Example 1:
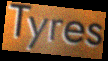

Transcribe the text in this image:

Tyres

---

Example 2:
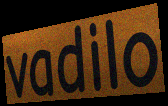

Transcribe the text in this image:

vadilo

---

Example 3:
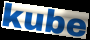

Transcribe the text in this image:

kube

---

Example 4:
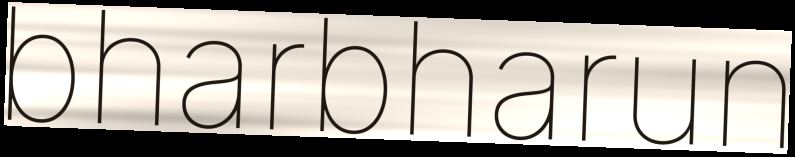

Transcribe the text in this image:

bharbharun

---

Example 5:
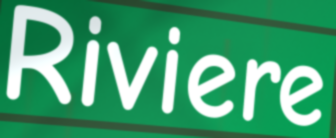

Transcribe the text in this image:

Riviere